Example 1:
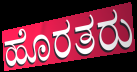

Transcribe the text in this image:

ಹೊರತರು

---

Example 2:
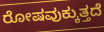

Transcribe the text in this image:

ರೋಷವುಕ್ಕುತ್ತದೆ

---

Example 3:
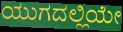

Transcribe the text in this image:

ಯುಗದಲ್ಲಿಯೇ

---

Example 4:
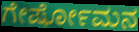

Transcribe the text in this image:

ಗೇರ್ಷೋಮನ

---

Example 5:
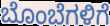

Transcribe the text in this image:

ಬೊಂಬೆಗಳಿಗೆ